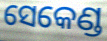
ସେକେଣ୍ଡ